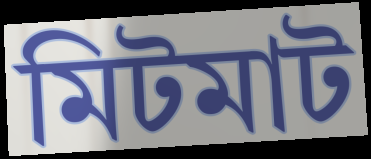
মিটমাট